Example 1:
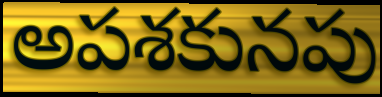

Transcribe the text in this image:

అపశకునపు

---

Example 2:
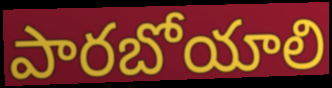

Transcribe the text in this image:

పారబోయాలి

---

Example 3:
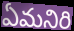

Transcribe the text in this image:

ఏమనిరి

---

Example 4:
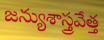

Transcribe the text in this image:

జన్యుశాస్త్రవేత్త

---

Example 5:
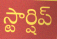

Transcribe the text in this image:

స్టార్షిప్